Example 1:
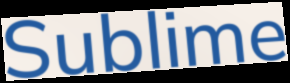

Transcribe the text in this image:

Sublime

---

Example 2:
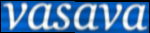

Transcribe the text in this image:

vasava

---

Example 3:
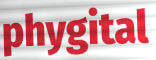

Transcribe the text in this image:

phygital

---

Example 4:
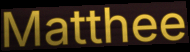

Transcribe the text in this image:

Matthee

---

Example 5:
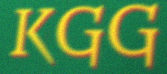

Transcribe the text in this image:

KGG